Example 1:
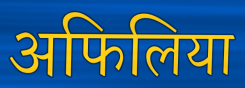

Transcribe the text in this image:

अफिलिया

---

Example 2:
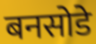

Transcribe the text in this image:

बनसोडे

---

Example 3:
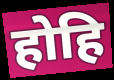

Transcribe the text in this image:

होहि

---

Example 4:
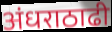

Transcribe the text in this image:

अंधराठाढी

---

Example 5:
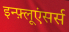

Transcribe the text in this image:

इन्फ़्लूएंसर्स